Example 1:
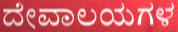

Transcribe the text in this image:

ದೇವಾಲಯಗಳ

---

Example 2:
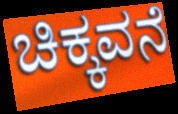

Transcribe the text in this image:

ಚಿಕ್ಕವನೆ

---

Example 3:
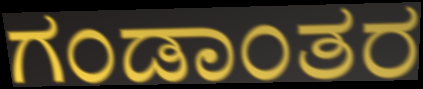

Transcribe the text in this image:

ಗಂಡಾಂತರ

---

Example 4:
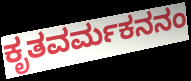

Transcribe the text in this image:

ಕೃತವರ್ಮಕನನಂ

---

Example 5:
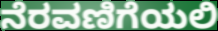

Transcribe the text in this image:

ನೆರವಣಿಗೆಯಲಿ